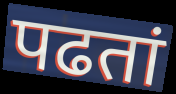
पढतां